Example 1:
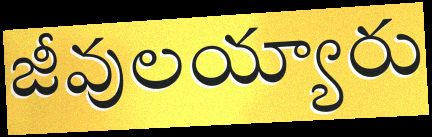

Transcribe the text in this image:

జీవులయ్యారు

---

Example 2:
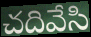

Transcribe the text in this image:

చదివేసి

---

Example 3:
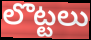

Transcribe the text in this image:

లొట్టలు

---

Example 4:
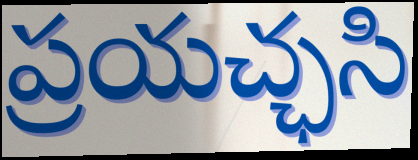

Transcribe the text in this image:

ప్రయచ్ఛసి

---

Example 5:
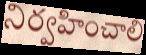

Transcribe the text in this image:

నిర్వహించాలి